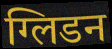
ग्लिडन